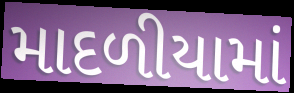
માદળીયામાં